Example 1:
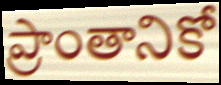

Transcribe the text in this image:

ప్రాంతానికో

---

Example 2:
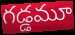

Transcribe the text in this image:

గడ్డమూ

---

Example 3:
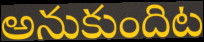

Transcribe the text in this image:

అనుకుందిట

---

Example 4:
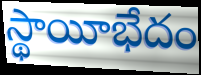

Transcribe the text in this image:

స్థాయీభేదం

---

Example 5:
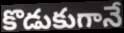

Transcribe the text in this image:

కొడుకుగానే